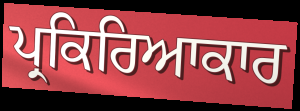
ਪ੍ਰਕਿਰਿਆਕਾਰ